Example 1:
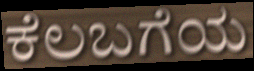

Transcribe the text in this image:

ಕೆಲಬಗೆಯ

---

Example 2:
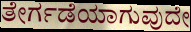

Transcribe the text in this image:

ತೇರ್ಗಡೆಯಾಗುವುದೇ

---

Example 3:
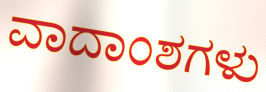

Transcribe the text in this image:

ವಾದಾಂಶಗಳು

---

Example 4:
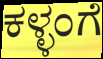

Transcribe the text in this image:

ಕಳ್ಳಂಗೆ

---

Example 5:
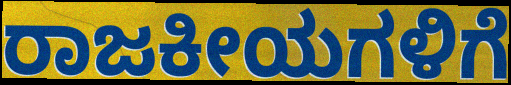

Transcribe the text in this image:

ರಾಜಕೀಯಗಳಿಗೆ